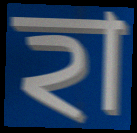
হা